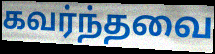
கவர்ந்தவை